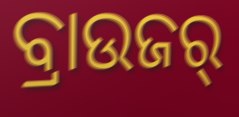
ବ୍ରାଉଜର୍